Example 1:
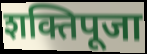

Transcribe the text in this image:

शक्तिपूजा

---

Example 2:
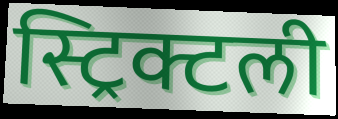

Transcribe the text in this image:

स्ट्रिक्टली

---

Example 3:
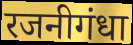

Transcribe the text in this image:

रजनीगंधा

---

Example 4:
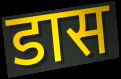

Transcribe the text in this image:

डास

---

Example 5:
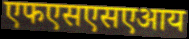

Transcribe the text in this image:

एफएसएसएआय